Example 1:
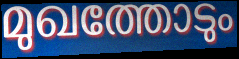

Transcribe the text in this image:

മുഖത്തോടും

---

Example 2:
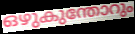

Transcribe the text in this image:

ഒഴുകുന്തോറും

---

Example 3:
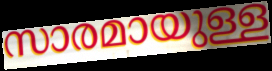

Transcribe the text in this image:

സാരമായുള്ള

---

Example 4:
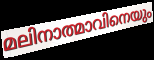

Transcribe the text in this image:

മലിനാത്മാവിനെയും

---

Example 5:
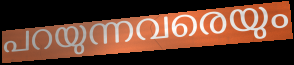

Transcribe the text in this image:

പറയുന്നവരെയും